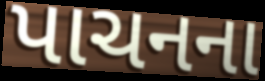
પાચનના